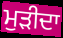
ਮੁੜੀਦਾ